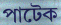
পাটেক